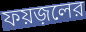
ফয়জ়লের